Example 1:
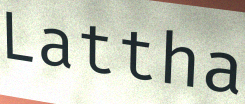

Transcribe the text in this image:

Lattha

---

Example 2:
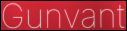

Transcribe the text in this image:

Gunvant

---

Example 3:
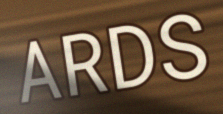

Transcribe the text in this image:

ARDS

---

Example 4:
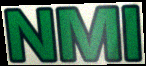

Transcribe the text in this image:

NMI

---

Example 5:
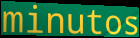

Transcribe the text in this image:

minutos